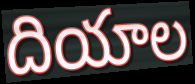
దియాల